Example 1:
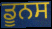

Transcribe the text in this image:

ਡੂਨਸ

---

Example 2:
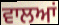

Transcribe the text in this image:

ਵਾਲਆਂ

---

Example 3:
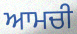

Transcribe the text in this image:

ਆਮਚੀ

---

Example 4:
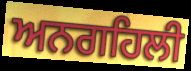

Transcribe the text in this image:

ਅਨਗਹਿਲੀ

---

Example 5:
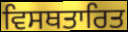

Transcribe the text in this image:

ਵਿਸਥਤਾਰਿਤ